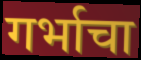
गर्भाचा